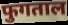
फुगताल